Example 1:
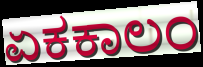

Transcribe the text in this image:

ಏಕಕಾಲಂ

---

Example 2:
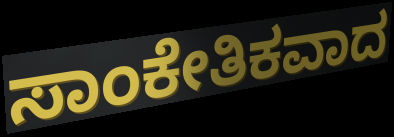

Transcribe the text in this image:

ಸಾಂಕೇತಿಕವಾದ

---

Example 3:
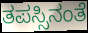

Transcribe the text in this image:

ತಪಸ್ಸಿನಂತೆ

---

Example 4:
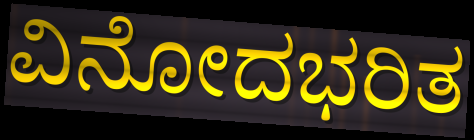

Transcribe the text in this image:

ವಿನೋದಭರಿತ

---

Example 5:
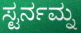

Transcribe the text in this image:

ಸ್ಟರ್ನಮ್ನ